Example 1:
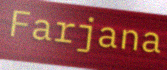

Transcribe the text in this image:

Farjana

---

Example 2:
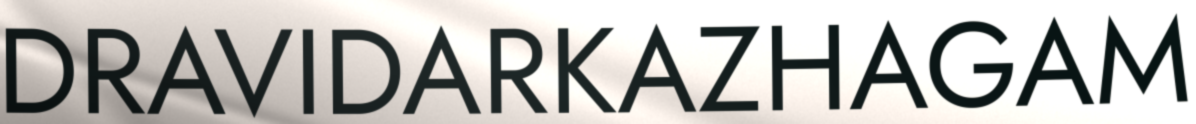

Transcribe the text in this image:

DRAVIDARKAZHAGAM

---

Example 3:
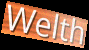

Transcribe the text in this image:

Welth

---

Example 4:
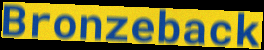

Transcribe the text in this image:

Bronzeback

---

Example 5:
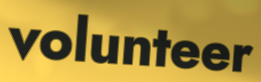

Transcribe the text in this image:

volunteer